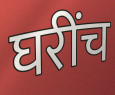
घरींच